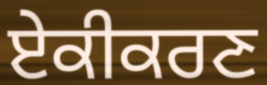
ਏਕੀਕਰਣ